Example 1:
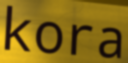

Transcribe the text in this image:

kora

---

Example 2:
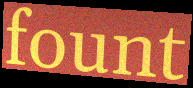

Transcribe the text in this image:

fount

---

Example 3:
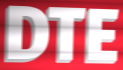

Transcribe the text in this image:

DTE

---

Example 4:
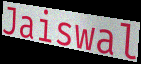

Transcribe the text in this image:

Jaiswal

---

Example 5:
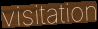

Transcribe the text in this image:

visitation